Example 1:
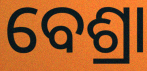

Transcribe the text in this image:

ବେଶ୍ରା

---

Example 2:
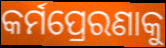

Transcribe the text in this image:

କର୍ମପ୍ରେରଣାକୁ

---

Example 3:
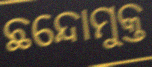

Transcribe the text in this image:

ଛନ୍ଦୋମୁକ୍ତ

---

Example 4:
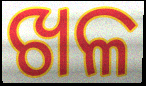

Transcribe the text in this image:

ଖଳ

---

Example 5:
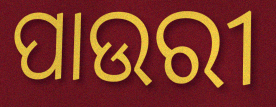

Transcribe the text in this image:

ପାଉରୀ